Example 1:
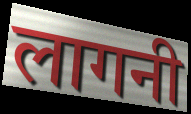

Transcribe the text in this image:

लागनी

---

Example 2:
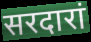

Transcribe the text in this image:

सरदारां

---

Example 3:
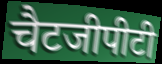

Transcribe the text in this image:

चैटजीपीटी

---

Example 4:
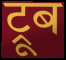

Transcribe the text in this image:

ट्रूब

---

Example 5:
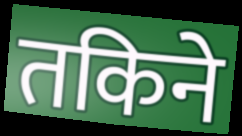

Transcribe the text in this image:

तकिने